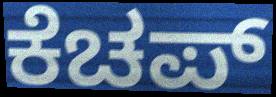
ಕೆಚಪ್